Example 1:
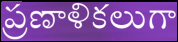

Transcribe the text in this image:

ప్రణాళికలుగా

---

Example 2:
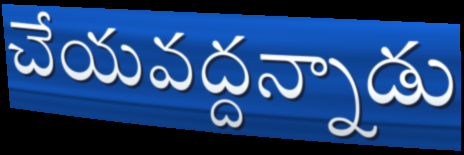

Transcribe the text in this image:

చేయవద్దన్నాడు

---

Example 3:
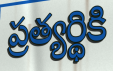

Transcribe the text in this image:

ప్రత్యర్థికి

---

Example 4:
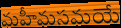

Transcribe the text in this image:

మహీమసమయే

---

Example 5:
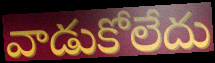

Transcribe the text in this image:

వాడుకోలేదు